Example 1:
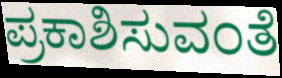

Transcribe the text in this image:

ಪ್ರಕಾಶಿಸುವಂತೆ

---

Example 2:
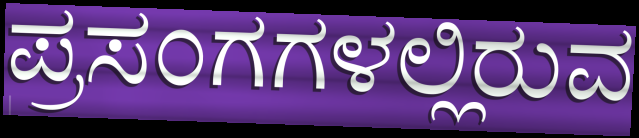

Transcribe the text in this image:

ಪ್ರಸಂಗಗಳಲ್ಲಿರುವ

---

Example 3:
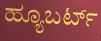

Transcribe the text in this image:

ಹ್ಯೂಬರ್ಟ್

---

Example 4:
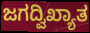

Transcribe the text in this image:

ಜಗದ್ವಿಖ್ಯಾತ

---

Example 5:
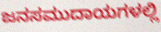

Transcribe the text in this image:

ಜನಸಮುದಾಯಗಳಲ್ಲಿ